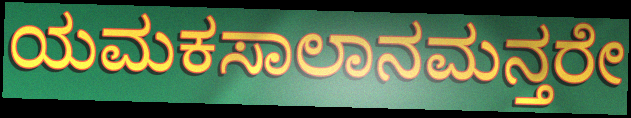
ಯಮಕಸಾಲಾನಮನ್ತರೇ